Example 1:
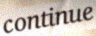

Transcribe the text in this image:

continue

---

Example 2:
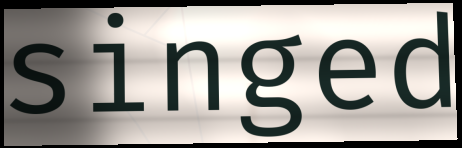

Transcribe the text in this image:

singed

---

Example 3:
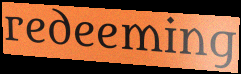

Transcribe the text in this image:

redeeming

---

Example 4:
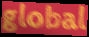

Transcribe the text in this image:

global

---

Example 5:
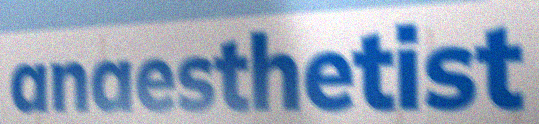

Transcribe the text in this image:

anaesthetist